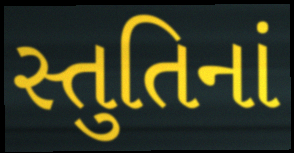
સ્તુતિનાં